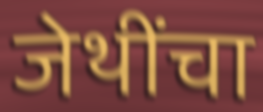
जेथींचा